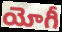
యోగీ